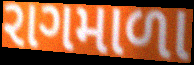
રાગમાળા